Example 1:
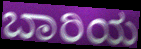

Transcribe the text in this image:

ಬಾರಿಯ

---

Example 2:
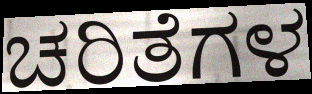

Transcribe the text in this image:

ಚರಿತೆಗಳ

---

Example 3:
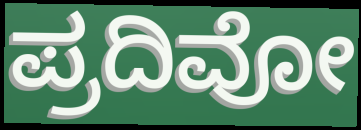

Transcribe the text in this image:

ಪ್ರದಿವೋ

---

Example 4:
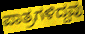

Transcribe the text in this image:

ಪಾತ್ರಗಳಿದ್ದವು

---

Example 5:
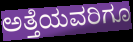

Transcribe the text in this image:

ಅತ್ತೆಯವರಿಗೂ